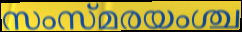
സംസ്മരയംശ്ച